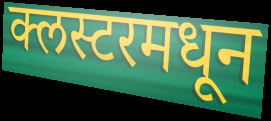
क्लस्टरमधून